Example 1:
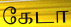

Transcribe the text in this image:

கேடா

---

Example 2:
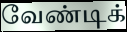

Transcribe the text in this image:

வேண்டிக்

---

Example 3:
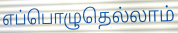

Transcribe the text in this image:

எப்பொழுதெல்லாம்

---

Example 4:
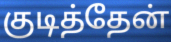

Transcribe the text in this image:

குடித்தேன்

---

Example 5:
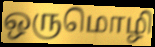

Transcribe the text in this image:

ஒருமொழி